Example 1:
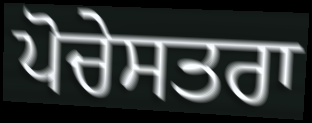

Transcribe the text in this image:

ਪੋਚੇਸਤਰਾ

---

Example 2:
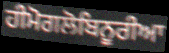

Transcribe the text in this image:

ਹੀਮੋਗਲੋਬਿਨੂਰੀਆ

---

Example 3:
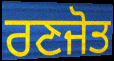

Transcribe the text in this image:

ਰਣਜੋਤ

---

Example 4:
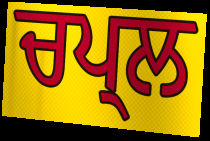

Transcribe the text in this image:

ਚਪ੍ਲ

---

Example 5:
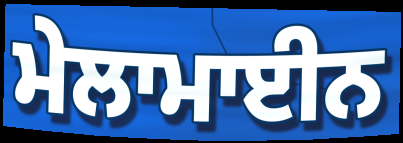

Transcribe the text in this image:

ਮੇਲਾਮਾਈਨ